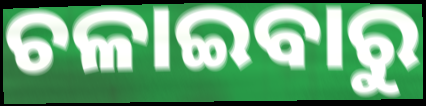
ଚଳାଇବାରୁ